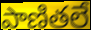
పాణితలే